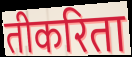
तीकरिता